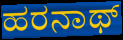
ಹರನಾಥ್